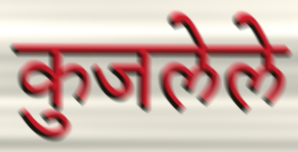
कुजलेले